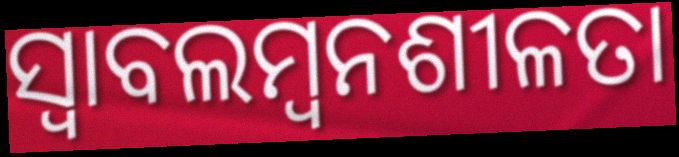
ସ୍ୱାବଲମ୍ୱନଶୀଳତା